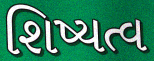
શિષ્યત્વ